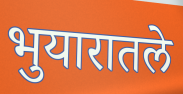
भुयारातले